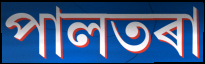
পালতৰা